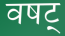
वषट्